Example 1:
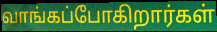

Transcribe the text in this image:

வாங்கப்போகிறார்கள்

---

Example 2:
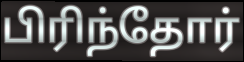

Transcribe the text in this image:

பிரிந்தோர்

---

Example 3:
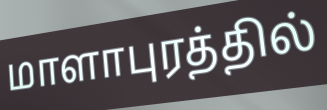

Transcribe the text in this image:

மாளாபுரத்தில்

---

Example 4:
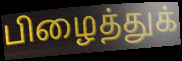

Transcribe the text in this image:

பிழைத்துக்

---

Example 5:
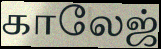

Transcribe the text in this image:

காலேஜ்